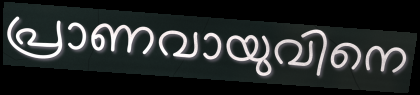
പ്രാണവായുവിനെ